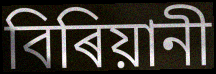
বিৰিয়ানী